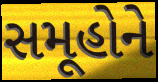
સમૂહોને